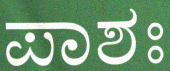
ಪಾಶಃ